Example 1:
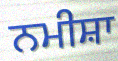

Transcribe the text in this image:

ਨਮੀਸ਼ਾ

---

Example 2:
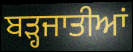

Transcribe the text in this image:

ਬੜ੍ਹਜਾਤੀਆਂ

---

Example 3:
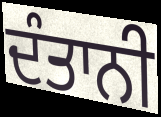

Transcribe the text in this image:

ਦੰਤਾਨੀ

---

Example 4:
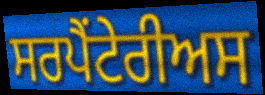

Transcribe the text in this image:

ਸਰਪੈਂਟੇਰੀਅਸ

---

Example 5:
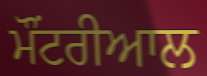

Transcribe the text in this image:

ਮੌਂਟਰੀਆਲ